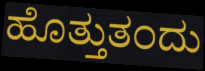
ಹೊತ್ತುತಂದು